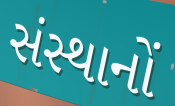
સંસ્થાનોં